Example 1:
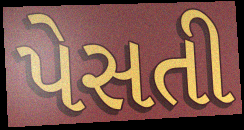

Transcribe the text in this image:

પેસતી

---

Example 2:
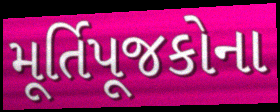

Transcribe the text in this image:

મૂર્તિપૂજકોના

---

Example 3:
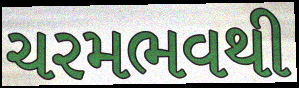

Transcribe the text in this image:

ચરમભવથી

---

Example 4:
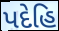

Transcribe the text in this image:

પદેહિ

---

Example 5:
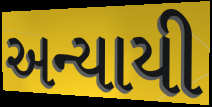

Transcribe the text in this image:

અન્યાયી